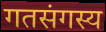
गतसंगस्य